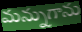
మన్నుగాను